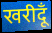
खरीदूँ